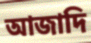
আজাদি